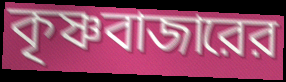
কৃষ্ণবাজারের